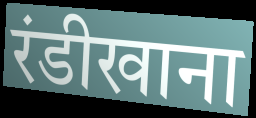
रंडीखाना